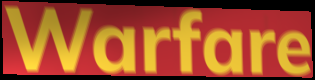
Warfare